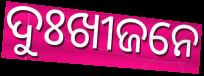
ଦୁଃଖୀଜନେ